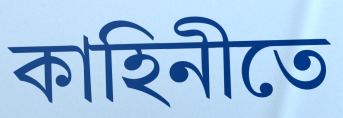
কাহিনীতে